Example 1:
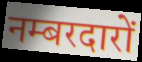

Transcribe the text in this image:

नम्बरदारों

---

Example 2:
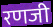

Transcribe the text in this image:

रणजी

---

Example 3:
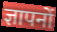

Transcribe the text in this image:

ज्ञापनों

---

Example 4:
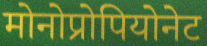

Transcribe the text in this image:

मोनोप्रोपियोनेट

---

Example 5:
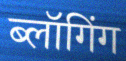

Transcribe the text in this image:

ब्लॉगिंग